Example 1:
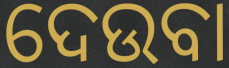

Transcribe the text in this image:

ଦେଉବା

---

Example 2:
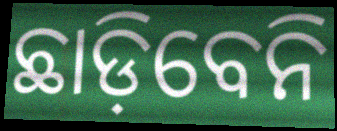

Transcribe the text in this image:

ଛାଡ଼ିବେନି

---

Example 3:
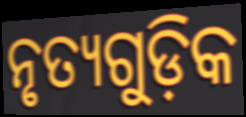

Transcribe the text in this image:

ନୃତ୍ୟଗୁଡ଼ିକ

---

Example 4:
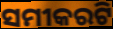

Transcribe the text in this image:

ସମୀକରଟି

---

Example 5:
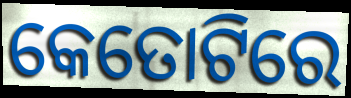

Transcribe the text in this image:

କେତୋଟିରେ